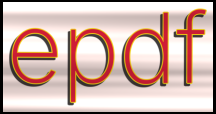
epdf